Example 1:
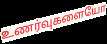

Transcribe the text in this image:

உணர்வுகளையோ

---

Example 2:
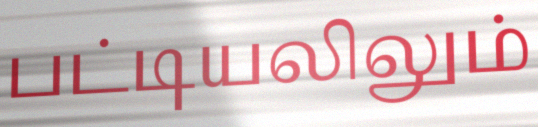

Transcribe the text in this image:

பட்டியலிலும்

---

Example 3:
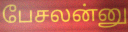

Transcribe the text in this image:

பேசலன்னு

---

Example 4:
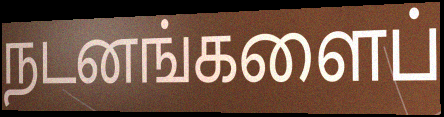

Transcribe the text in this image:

நடனங்களைப்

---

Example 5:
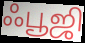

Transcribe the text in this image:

ஃபூஜி